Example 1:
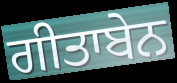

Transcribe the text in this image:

ਗੀਤਾਬੇਨ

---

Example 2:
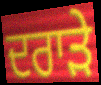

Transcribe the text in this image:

ਦਰਾੜੇ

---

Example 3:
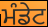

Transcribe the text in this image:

ਮੰਡੇਟ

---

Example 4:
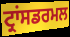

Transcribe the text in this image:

ਟ੍ਰਾਂਸਡਰਮਲ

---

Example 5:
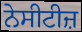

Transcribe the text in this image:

ਨੇਸੀਟੀਜ਼